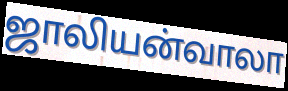
ஜாலியன்வாலா